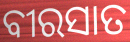
ବୀରସାତ